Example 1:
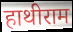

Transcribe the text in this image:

हाथीराम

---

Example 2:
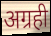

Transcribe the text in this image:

अग्रही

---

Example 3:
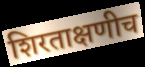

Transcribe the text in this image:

शिरताक्षणीच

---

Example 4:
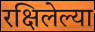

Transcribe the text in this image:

रक्षिलेल्या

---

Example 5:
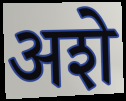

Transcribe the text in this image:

अशे